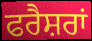
ਫਰੈਸ਼ਰਾਂ